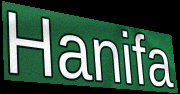
Hanifa